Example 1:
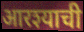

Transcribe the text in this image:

आरश्याची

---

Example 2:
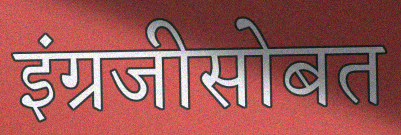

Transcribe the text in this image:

इंग्रजीसोबत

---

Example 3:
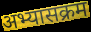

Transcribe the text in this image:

अभ्यासक्रम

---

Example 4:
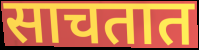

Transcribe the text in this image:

साचतात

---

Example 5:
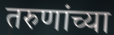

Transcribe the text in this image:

तरुणांच्या